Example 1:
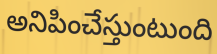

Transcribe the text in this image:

అనిపించేస్తుంటుంది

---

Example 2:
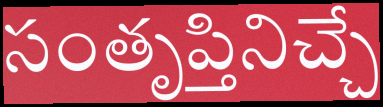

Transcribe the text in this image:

సంతృప్తినిచ్చే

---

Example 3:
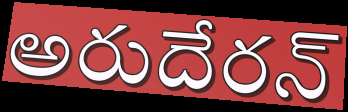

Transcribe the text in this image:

అరుదేరన్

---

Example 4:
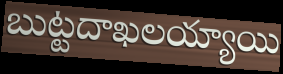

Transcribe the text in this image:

బుట్టదాఖలయ్యాయి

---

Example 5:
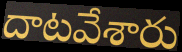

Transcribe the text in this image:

దాటవేశారు